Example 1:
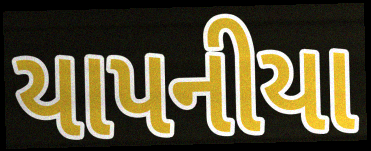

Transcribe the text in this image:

યાપનીયા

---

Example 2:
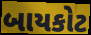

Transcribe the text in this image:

બાયકોટ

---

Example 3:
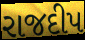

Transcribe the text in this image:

રાજદીપ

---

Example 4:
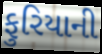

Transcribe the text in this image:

ફુરિયાની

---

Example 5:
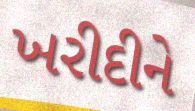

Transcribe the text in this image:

ખરીદીને